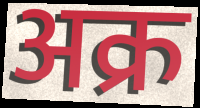
अक्र